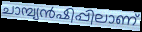
ചാമ്പ്യൻഷിപ്പിലാണ്